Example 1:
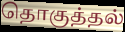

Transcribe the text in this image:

தொகுத்தல்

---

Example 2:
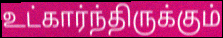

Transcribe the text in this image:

உட்கார்ந்திருக்கும்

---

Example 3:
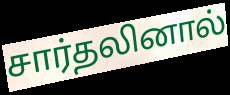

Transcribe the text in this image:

சார்தலினால்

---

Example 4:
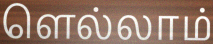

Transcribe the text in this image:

ளெல்லாம்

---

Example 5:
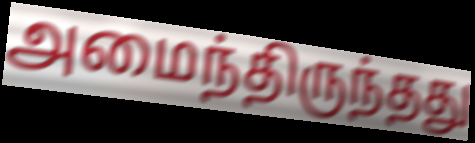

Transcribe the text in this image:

அமைந்திருந்தது